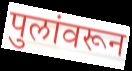
पुलांवरून